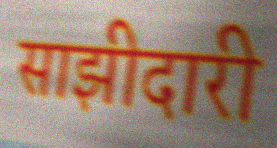
साझीदारी